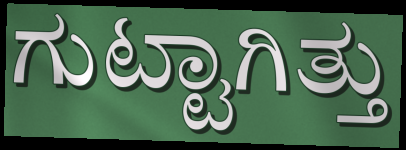
ಗುಟ್ಟಾಗಿತ್ತು